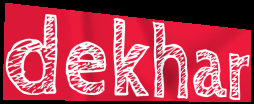
dekhar